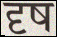
दृष